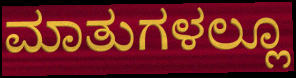
ಮಾತುಗಳಲ್ಲೂ